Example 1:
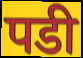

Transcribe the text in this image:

पडी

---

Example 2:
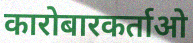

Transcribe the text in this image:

कारोबारकर्ताओ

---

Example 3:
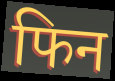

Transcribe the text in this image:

फिन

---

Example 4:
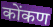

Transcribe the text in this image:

कोंकण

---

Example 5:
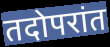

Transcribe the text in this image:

तदोपरांत